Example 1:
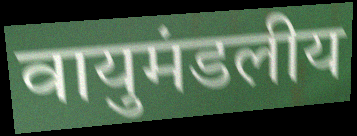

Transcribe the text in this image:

वायुमंडलीय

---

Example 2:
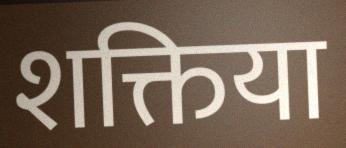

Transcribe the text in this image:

शक्तिया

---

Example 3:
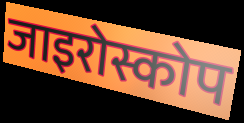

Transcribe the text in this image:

जाइरोस्कोप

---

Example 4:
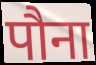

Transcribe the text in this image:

पौना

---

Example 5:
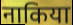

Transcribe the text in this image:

नाकिया